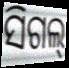
ସିଗଲ୍